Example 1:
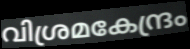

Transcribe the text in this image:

വിശ്രമകേന്ദ്രം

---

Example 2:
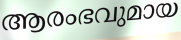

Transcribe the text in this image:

ആരംഭവുമായ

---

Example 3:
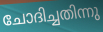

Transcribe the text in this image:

ചോദിച്ചതിന്നു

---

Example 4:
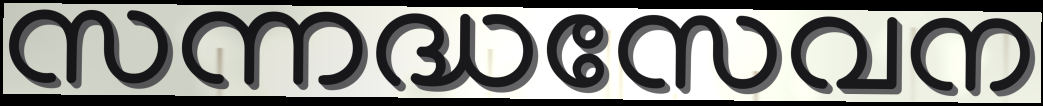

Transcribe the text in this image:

സന്നദ്ധസേവന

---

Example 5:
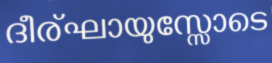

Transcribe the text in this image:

ദീര്ഘായുസ്സോടെ